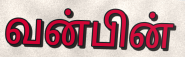
வன்பின்